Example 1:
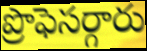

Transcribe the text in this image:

ప్రొఫెసర్గారు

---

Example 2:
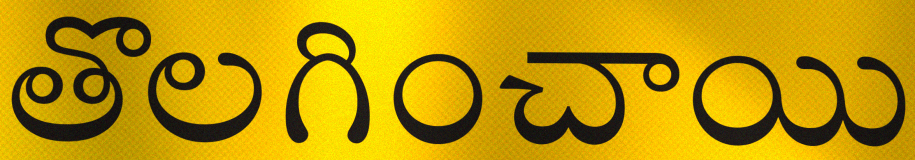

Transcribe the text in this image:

తొలగించాయి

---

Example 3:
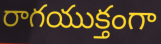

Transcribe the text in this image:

రాగయుక్తంగా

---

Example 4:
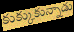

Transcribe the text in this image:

కుక్కుకున్నాడు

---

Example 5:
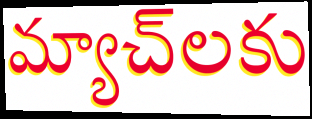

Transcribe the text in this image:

మ్యాచ్‌లకు